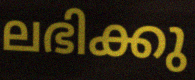
ലഭിക്കു